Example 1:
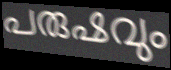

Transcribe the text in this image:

പരുഷവും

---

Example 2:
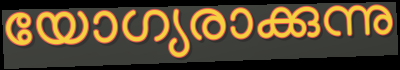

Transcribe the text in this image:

യോഗ്യരാക്കുന്നു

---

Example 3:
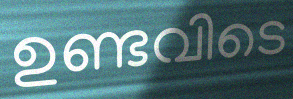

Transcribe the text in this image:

ഉണ്ടവിടെ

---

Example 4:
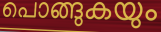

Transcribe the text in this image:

പൊങ്ങുകയും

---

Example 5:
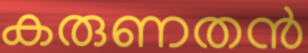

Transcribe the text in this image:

കരുണതൻ